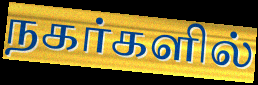
நகர்களில்